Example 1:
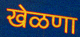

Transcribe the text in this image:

खेळणा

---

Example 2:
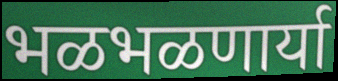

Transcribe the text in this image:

भळभळणार्या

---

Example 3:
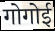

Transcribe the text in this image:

गोगोई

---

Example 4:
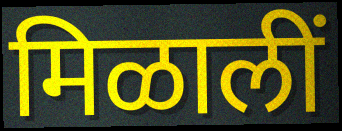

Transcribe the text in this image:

मिळालीं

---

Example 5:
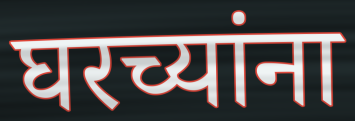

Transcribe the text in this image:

घरच्यांना